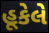
હૂકેલે